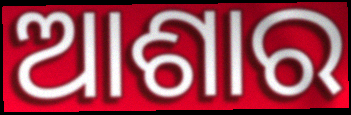
ଆଶାର